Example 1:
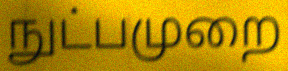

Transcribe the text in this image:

நுட்பமுறை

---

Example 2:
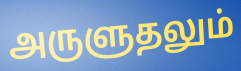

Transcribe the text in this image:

அருளுதலும்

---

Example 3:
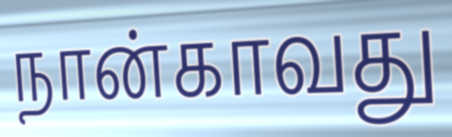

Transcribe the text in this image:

நான்காவது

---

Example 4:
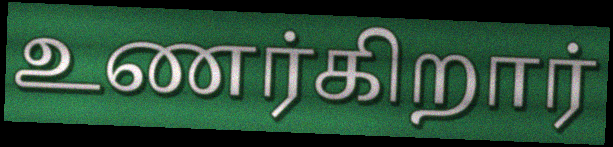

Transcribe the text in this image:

உணர்கிறார்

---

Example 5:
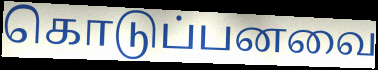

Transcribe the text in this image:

கொடுப்பனவை